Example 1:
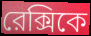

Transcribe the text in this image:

রেক্সিকে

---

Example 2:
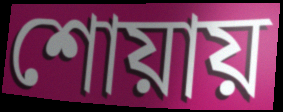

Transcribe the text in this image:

শোয়ায়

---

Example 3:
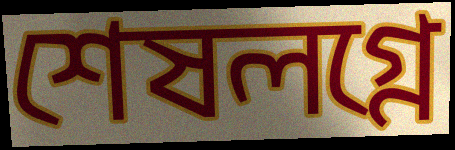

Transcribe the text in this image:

শেষলগ্নে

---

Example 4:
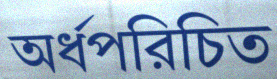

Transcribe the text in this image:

অর্ধপরিচিত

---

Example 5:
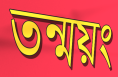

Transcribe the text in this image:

তন্ময়ং